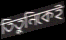
তিতুনিকেই